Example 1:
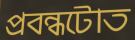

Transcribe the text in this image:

প্ৰবন্ধটোত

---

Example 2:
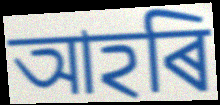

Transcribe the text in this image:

আহৰি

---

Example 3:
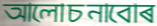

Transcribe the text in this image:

আলোচনাবোৰ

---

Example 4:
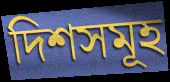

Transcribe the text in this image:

দিশসমূহ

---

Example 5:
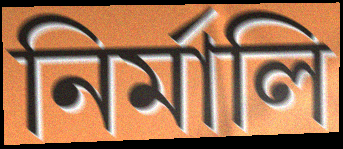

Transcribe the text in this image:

নিৰ্মালি